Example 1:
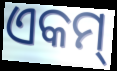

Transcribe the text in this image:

ଏକମ୍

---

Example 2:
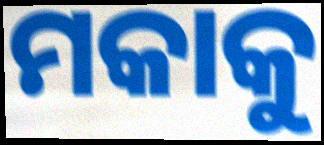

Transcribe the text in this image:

ମକାକୁ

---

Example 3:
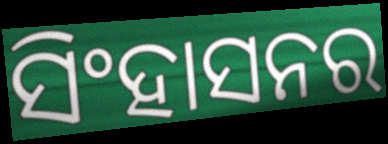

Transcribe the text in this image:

ସିଂହାସନର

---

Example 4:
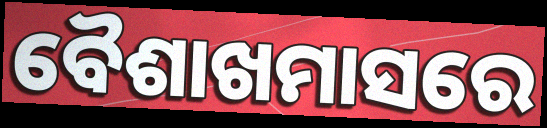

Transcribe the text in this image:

ବୈଶାଖମାସରେ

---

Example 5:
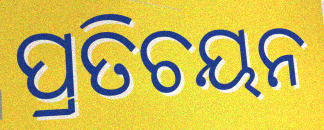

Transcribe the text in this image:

ପ୍ରତିଚୟନ